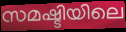
സമഷ്ടിയിലെ